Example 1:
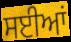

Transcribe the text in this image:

ਸਈਆਂ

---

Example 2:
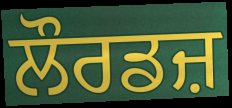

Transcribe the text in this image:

ਲੌਰਡਜ਼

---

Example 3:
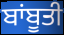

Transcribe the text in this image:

ਬਾਂਬੂਤੀ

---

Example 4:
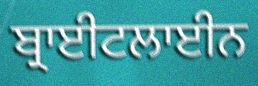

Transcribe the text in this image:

ਬ੍ਰਾਈਟਲਾਈਨ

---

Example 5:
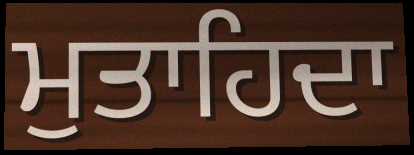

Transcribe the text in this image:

ਮੁਤਾਹਿਦਾ